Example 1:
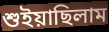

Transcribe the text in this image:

শুইয়াছিলাম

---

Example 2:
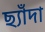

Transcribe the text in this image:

ছ্যাঁদা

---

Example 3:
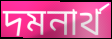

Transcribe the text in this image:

দমনার্থ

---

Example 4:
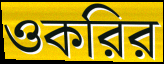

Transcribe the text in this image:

ওকরির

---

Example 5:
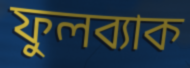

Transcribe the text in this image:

ফুলব্যাক